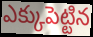
ఎక్కుపెట్టిన